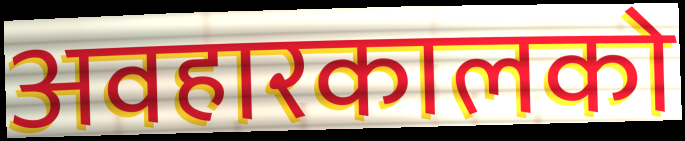
अवहारकालको